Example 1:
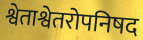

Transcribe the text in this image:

श्वेताश्वेतरोपनिषद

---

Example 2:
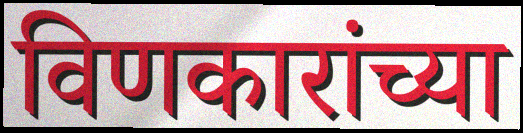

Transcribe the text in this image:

विणकारांच्या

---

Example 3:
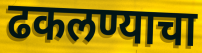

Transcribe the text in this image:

ढकलण्याचा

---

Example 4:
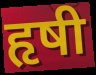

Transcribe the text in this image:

हृषी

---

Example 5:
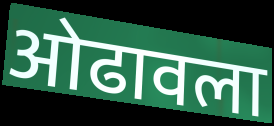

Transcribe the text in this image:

ओढावला